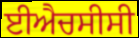
ਈਐਚਸੀਸੀ